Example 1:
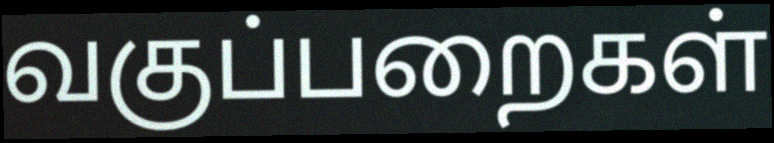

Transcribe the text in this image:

வகுப்பறைகள்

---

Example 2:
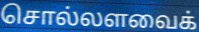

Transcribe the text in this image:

சொல்லளவைக்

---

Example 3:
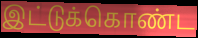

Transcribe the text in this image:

இட்டுக்கொண்ட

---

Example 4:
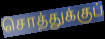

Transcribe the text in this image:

சொத்துக்குப்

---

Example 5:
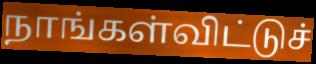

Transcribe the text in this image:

நாங்கள்விட்டுச்